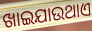
ଖାଇଯାଉଥାଏ